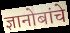
ज्ञानोबांचे